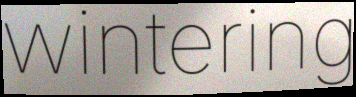
wintering